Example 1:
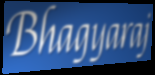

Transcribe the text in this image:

Bhagyaraj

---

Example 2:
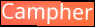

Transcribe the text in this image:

Campher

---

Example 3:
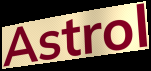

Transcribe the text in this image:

Astrol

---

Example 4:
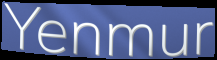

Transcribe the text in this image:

Yenmur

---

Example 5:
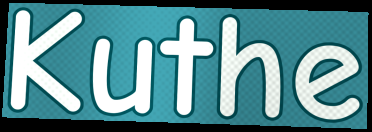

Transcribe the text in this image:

Kuthe